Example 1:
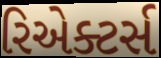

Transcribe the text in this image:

રિએક્ટર્સ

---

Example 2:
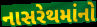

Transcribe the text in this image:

નાસરેથમાંનો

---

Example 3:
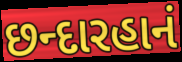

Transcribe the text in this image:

છન્દારહાનં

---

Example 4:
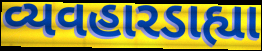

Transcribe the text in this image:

વ્યવહારડાહ્યા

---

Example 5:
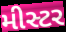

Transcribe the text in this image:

મીસ્ટર